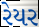
રેયર